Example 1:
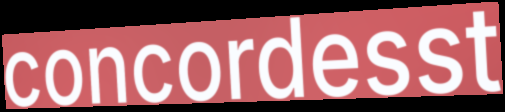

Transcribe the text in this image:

concordesst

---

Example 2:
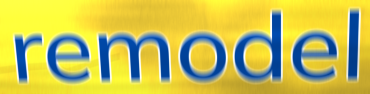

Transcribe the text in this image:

remodel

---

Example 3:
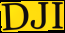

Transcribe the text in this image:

DJI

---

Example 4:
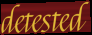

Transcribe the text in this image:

detested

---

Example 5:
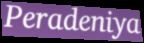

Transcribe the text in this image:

Peradeniya